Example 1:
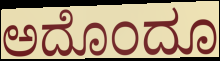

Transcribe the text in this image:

ಅದೊಂದೂ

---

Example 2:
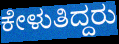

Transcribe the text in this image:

ಕೇಳುತಿದ್ದರು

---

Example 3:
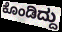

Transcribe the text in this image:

ಕೊಂಡಿದ್ದು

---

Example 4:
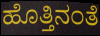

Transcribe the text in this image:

ಹೊತ್ತಿನಂತೆ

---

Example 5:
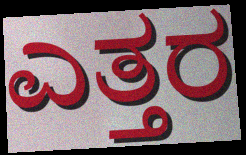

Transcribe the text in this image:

ಎತ್ತರ